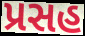
પ્રસહ